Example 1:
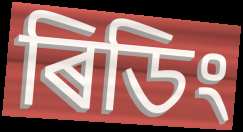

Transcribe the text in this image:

ৰিডিং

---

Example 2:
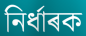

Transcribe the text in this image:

নিৰ্ধাৰক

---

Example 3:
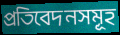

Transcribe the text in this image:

প্ৰতিবেদনসমূহ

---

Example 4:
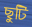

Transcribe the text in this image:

ছুটি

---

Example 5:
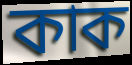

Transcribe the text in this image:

কাক